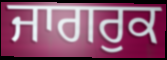
ਜਾਗਰੁਕ